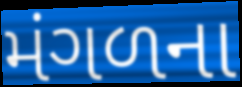
મંગળના